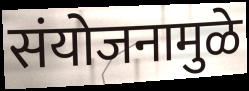
संयोजनामुळे